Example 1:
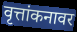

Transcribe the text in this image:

वृत्तांकनावर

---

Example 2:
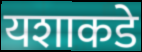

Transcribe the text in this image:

यशाकडे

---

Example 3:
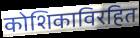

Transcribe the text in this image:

कोशिकाविरहित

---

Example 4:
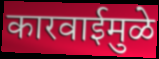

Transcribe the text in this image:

कारवाईमुळे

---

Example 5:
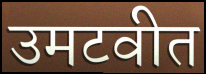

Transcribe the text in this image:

उमटवीत